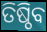
ତିଷ୍ଠିବ